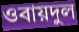
ওবায়দুল